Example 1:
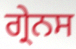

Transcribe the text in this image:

ਗ੍ਰੇਨਸ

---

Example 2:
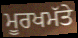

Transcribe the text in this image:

ਮੂਰਖਮੱਤੇ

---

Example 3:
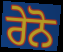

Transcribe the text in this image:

ਰੇਨੋ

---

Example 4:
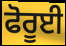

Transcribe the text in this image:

ਫੋਰੂਈ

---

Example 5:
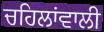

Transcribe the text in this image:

ਚਹਿਲਾਂਵਾਲੀ